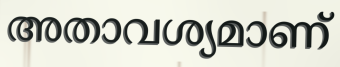
അതാവശ്യമാണ്